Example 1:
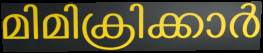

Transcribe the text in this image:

മിമിക്രിക്കാർ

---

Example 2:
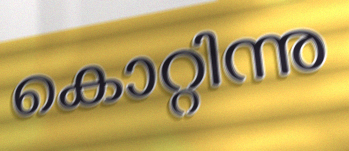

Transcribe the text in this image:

കൊറ്റിന്നു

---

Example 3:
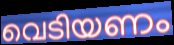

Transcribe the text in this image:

വെടിയണം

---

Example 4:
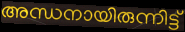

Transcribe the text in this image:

അന്ധനായിരുന്നിട്ട്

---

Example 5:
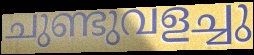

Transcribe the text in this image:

ചുണ്ടുവളച്ചു